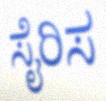
ಸೈರಿಸ